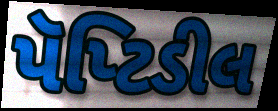
પૅપ્ટિડીલ